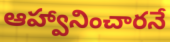
ఆహ్వానించారనే